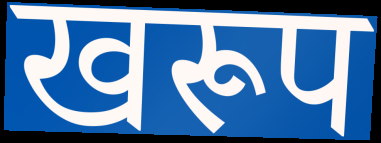
खरूप